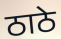
ठाठे